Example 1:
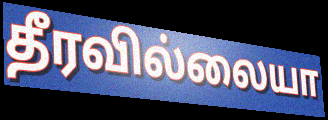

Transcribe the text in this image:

தீரவில்லையா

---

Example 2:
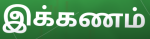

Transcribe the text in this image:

இக்கணம்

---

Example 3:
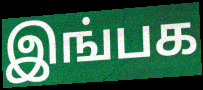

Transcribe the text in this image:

இங்பக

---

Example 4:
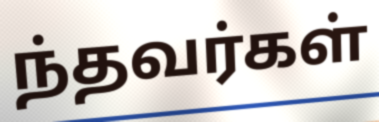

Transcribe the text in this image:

ந்தவர்கள்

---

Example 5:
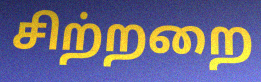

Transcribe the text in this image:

சிற்றறை